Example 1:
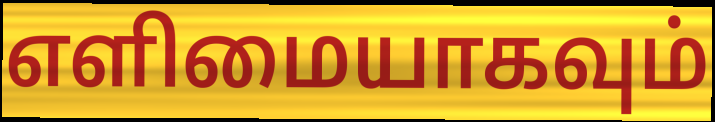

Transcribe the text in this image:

எளிமையாகவும்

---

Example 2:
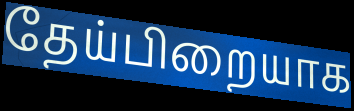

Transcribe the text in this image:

தேய்பிறையாக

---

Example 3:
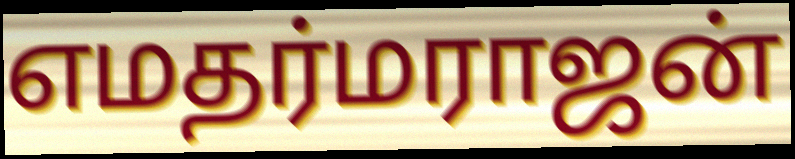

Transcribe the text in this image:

எமதர்மராஜன்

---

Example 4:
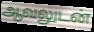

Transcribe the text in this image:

ஆவலுடன்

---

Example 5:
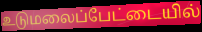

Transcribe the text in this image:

உடுமலைப்பேட்டையில்